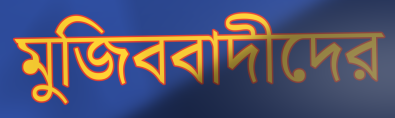
মুজিববাদীদের